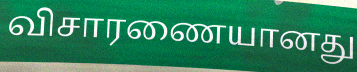
விசாரணையானது